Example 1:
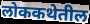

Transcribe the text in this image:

लोककथेतील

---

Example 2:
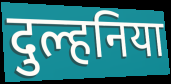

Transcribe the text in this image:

दुल्हनिया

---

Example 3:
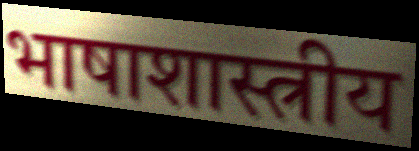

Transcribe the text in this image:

भाषाशास्त्रीय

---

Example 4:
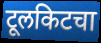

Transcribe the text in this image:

टूलकिटचा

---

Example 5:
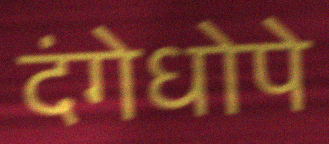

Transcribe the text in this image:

दंगेधोपे